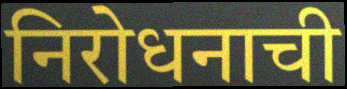
निरोधनाची